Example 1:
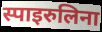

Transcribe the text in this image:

स्पाइरुलिना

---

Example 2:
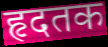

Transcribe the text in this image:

हृदतक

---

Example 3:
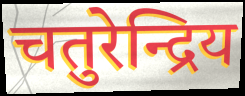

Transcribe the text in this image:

चतुरेन्द्रिय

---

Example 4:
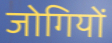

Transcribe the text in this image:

जोगियों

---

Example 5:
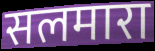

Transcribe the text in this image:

सलमारा